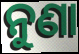
ନୁଣା